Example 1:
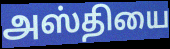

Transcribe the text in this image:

அஸ்தியை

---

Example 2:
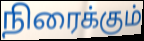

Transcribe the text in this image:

நிரைக்கும்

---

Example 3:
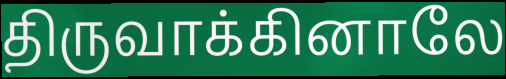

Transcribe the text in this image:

திருவாக்கினாலே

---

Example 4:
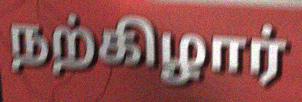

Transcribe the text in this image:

நற்கிழார்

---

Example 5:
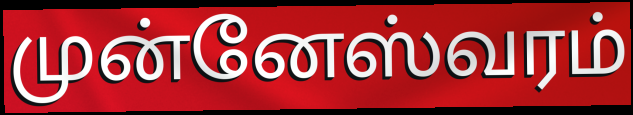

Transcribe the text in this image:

முன்னேஸ்வரம்